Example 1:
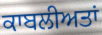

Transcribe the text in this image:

ਕਾਬਲੀਅਤਾਂ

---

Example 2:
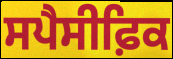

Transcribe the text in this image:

ਸਪੈਸੀਫ਼ਿਕ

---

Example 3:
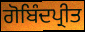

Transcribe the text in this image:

ਗੋਬਿੰਦਪ੍ਰੀਤ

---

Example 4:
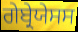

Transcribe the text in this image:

ਗੇਬ੍ਰੇਯੇਸਸ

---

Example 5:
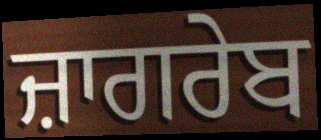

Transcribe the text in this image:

ਜ਼ਾਗਰੇਬ